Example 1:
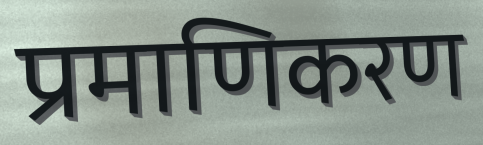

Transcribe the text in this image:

प्रमाणिकरण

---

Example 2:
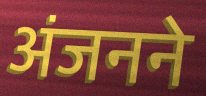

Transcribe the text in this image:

अंजनने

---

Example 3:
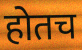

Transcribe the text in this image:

होतच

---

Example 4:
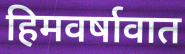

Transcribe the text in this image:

हिमवर्षावात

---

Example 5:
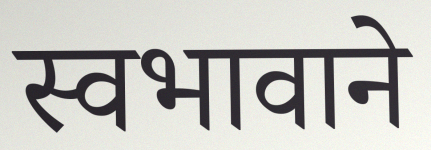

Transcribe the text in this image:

स्वभावाने